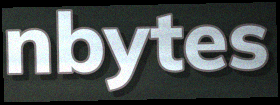
nbytes